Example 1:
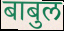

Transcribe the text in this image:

बाबुल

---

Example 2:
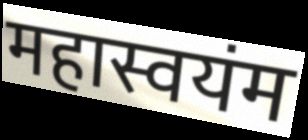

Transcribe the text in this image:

महास्वयंम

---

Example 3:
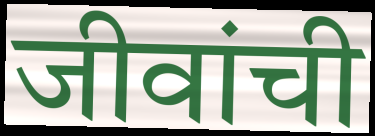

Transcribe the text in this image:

जीवांची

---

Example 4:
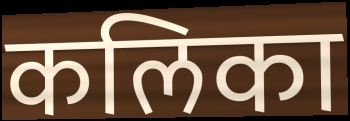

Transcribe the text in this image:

कलिका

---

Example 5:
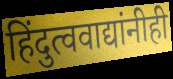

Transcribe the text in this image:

हिंदुत्ववाद्यांनीही